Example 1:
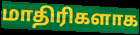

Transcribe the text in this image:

மாதிரிகளாக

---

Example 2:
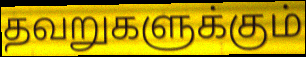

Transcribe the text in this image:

தவறுகளுக்கும்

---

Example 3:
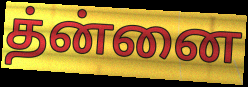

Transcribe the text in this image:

த்ன்னை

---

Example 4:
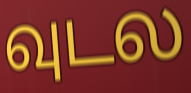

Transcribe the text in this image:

வுடல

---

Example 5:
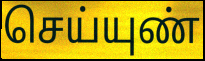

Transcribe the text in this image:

செய்யுண்